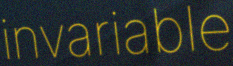
invariable